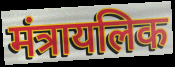
मंत्रायलिक